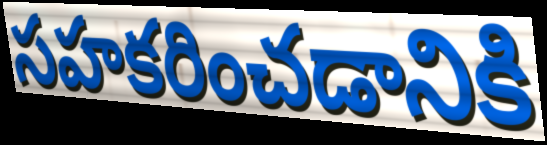
సహకరించడానికి